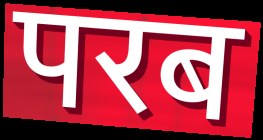
परब